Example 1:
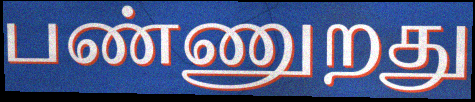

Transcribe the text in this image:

பண்ணுறது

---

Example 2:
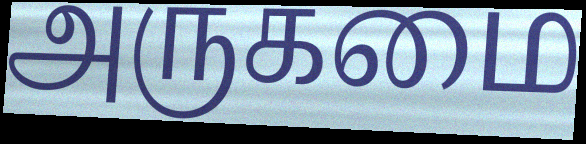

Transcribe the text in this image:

அருகமை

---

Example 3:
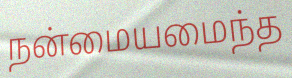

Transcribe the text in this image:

நன்மையமைந்த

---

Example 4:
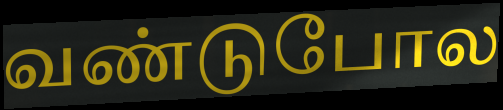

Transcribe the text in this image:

வண்டுபோல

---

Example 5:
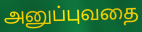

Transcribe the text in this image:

அனுப்புவதை